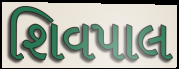
શિવપાલ